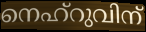
നെഹ്റുവിന്